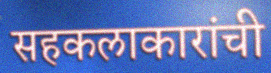
सहकलाकारांची